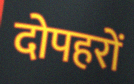
दोपहरों